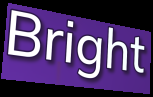
Bright